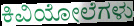
ಕಿವಿಯೋಲೆಗಳು